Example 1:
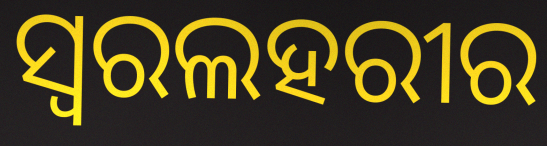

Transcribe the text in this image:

ସ୍ୱରଲହରୀର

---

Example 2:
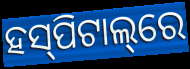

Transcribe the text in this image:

ହସ୍‌ପିଟାଲ୍‌ରେ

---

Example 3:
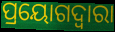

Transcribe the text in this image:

ପ୍ରୟୋଗଦ୍ୱାରା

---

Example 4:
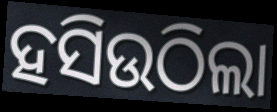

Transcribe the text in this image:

ହସିଉଠିଲା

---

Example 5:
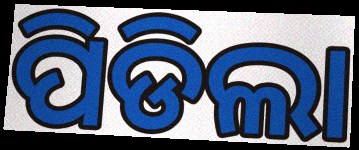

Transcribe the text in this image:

ପିଡିଲା